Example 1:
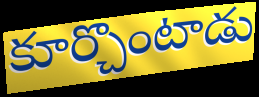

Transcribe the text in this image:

కూర్చొంటాడు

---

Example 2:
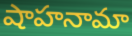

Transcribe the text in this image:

షాహనామా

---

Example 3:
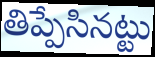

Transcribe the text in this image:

తిప్పేసినట్టు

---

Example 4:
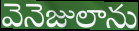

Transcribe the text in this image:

వెనెజులాను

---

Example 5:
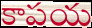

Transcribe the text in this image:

కాపయ